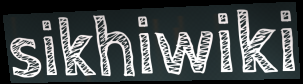
sikhiwiki